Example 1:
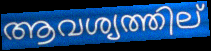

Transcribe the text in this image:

ആവശ്യത്തില്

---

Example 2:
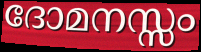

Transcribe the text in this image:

ദോമനസ്സം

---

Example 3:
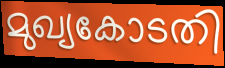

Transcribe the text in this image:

മുഖ്യകോടതി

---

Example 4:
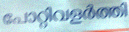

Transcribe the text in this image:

പോറ്റിവളർത്തി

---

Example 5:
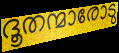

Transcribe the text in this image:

ദൂതന്മാരോടു